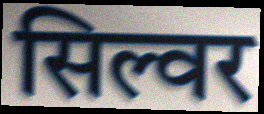
सिल्‍वर